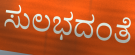
ಸುಲಭದಂತೆ